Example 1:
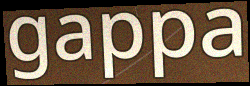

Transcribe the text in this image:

gappa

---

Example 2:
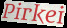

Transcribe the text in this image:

Pirkei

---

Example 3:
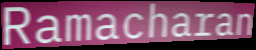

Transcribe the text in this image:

Ramacharan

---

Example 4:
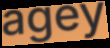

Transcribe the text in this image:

agey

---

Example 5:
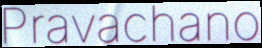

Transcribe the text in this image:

Pravachano